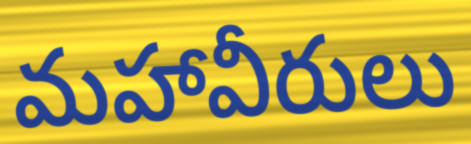
మహావీరులు